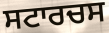
ਸਟਾਰਚਸ